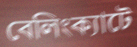
বেলিংক্যাটে